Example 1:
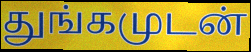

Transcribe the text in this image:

துங்கமுடன்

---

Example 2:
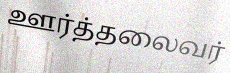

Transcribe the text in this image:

ஊர்த்தலைவர்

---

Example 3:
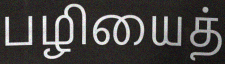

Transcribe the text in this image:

பழியைத்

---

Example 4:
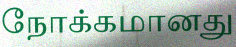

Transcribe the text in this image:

நோக்கமானது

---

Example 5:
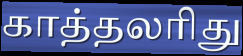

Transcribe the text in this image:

காத்தலரிது